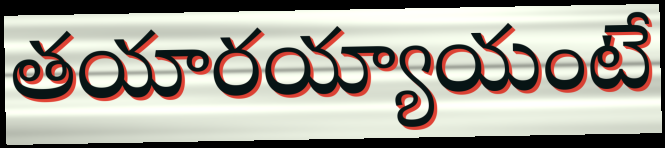
తయారయ్యాయంటే